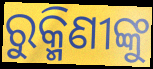
ରୁକ୍ମିଣୀଙ୍କୁ